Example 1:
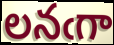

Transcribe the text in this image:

లనఁగా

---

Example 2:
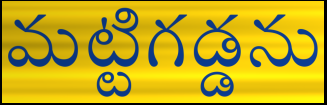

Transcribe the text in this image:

మట్టిగడ్డను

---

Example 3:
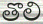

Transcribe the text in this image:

తొలి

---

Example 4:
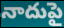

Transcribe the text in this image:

నాదుపై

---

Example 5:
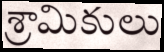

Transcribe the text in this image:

శ్రామికులు